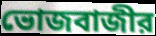
ভোজবাজীর